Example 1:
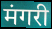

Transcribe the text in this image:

मंगरी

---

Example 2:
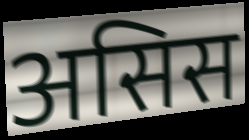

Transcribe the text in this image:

असिस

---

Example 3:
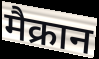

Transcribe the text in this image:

मैक्रान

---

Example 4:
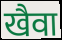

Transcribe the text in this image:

खैवा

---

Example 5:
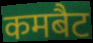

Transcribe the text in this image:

कमबैट